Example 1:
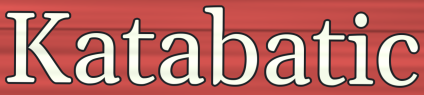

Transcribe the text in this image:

Katabatic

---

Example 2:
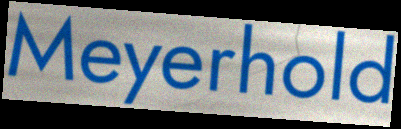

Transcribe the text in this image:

Meyerhold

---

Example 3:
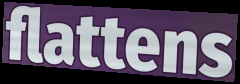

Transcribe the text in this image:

flattens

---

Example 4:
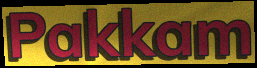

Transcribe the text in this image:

Pakkam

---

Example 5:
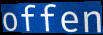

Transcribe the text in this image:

offen